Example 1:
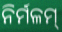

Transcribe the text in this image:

ନିର୍ମଳମ୍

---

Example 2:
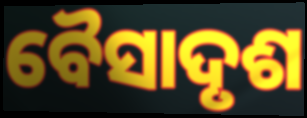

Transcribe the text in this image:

ବୈସାଦୃଶ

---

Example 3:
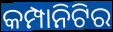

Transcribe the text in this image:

କମ୍ପାନିଟିର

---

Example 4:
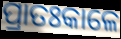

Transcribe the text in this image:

ପ୍ରାତଃକାଳେ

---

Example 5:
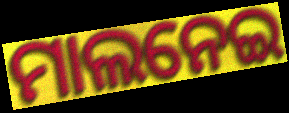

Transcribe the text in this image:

ମାଲନେଇ